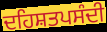
ਦਹਿਸ਼ਤਪਸੰਦੀ